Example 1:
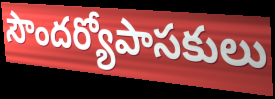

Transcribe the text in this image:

సౌందర్యోపాసకులు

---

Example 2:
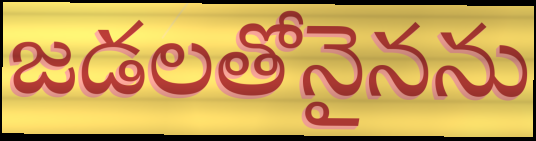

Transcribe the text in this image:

జడలతోనైనను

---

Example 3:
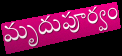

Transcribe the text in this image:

మృదుపూర్వం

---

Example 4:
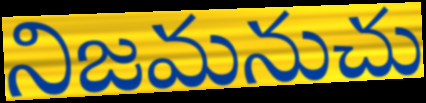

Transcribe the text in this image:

నిజమనుచు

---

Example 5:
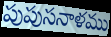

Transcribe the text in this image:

పుపుసనాళము